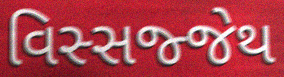
વિસ્સજ્જેથ